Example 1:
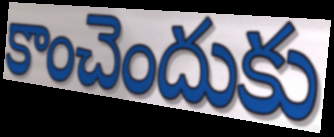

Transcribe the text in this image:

కాంచెందుకు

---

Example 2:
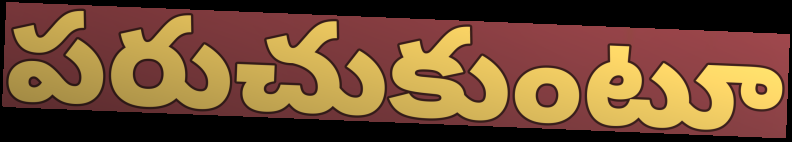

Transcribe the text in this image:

పరుచుకుంటూ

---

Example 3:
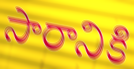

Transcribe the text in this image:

సారానికి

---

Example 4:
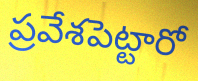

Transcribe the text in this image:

ప్రవేశపెట్టారో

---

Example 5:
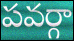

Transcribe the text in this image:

పవర్గా